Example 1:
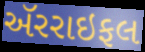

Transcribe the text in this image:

ઍરરાઇફલ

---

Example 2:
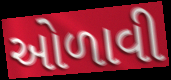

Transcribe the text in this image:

ઓળાવી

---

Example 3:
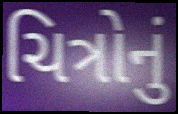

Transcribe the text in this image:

ચિત્રોનું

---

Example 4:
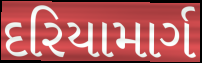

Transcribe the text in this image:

દરિયામાર્ગ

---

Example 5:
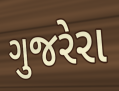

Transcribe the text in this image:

ગુજરેરા